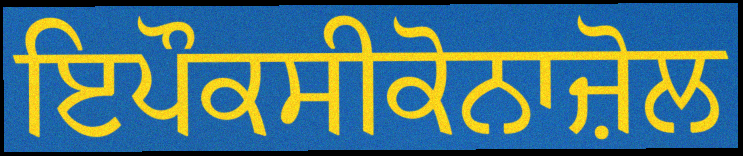
ਇਪੌਕਸੀਕੋਨਾਜ਼ੋਲ